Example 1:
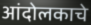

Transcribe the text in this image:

आंदोलकाचे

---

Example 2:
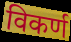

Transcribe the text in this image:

विकर्ण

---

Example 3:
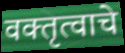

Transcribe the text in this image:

वक्तृत्वाचे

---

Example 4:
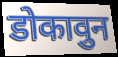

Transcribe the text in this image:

डोकावुन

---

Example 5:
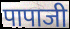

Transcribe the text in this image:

पापाजी